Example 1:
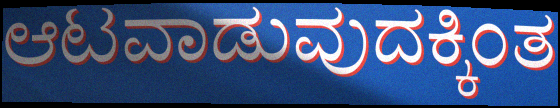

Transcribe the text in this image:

ಆಟವಾಡುವುದಕ್ಕಿಂತ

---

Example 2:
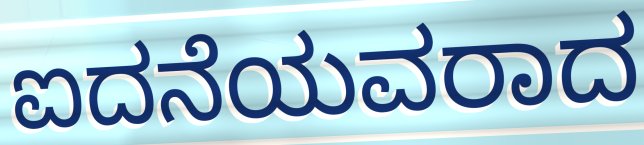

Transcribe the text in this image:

ಐದನೆಯವರಾದ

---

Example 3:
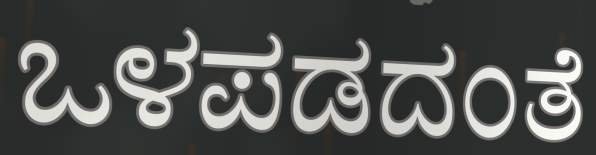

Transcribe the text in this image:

ಒಳಪಡದಂತೆ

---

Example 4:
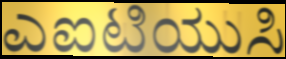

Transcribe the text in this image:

ಎಐಟಿಯುಸಿ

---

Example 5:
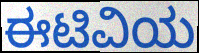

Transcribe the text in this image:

ಈಟಿವಿಯ